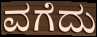
ವಗೆದು